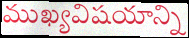
ముఖ్యవిషయాన్ని